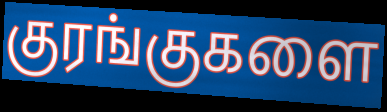
குரங்குகளை